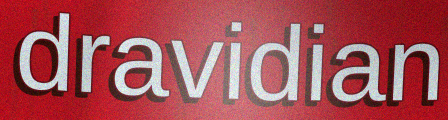
dravidian